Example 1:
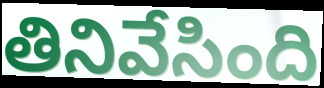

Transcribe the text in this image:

తినివేసింది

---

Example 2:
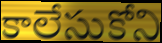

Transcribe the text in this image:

కాలేసుకోని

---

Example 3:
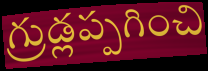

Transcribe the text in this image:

గ్రుడ్లప్పగించి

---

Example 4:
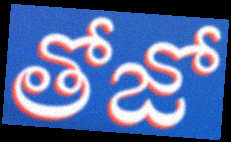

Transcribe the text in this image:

తోజో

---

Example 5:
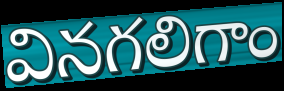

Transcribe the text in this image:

వినగలిగాం